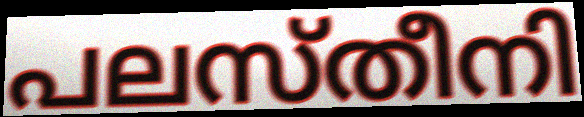
പലസ്തീനി